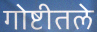
गोष्टीतले